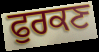
ਫੁਰਕਣ